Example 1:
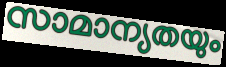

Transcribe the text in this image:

സാമാന്യതയും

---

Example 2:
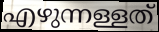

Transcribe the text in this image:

എഴുന്നള്ളത്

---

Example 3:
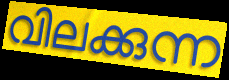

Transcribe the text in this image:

വിലക്കുന്ന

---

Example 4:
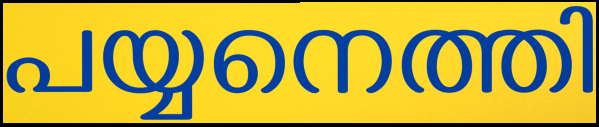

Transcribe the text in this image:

പയ്യനെത്തി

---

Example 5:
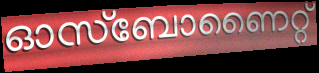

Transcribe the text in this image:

ഓസ്ബോണൈറ്റ്